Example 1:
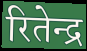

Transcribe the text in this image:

रितेन्द्र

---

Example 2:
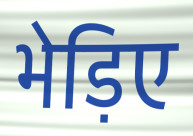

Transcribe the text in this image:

भेड़िए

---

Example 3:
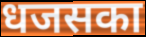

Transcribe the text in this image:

धजसका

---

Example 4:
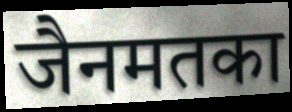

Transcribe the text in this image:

जैनमतका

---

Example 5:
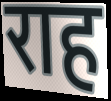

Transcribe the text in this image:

राह